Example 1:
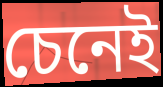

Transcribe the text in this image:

চেনেই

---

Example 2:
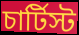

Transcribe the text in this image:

চার্টিস্ট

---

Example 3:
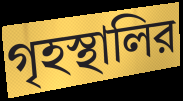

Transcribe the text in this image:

গৃহস্থালির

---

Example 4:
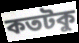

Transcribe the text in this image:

কতটকু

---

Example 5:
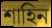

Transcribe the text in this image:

শাহিন